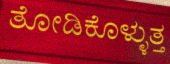
ತೋಡಿಕೊಳ್ಳುತ್ತ